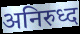
अनिरुध्द